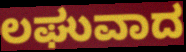
ಲಘುವಾದ